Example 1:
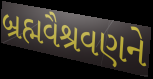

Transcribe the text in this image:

બ્રહ્મવૈશ્રવણને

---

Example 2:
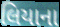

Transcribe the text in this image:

લિયાના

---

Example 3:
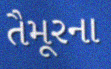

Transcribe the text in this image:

તૈમૂરના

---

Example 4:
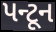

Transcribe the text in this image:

પન્ટૂન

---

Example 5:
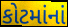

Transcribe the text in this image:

કોટમાંનાં